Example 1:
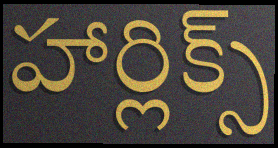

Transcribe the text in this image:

హార్లిక్స్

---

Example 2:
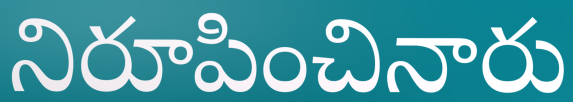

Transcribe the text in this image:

నిరూపించినారు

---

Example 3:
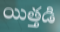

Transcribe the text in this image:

యిత్తడి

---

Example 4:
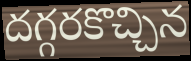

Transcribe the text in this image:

దగ్గరకొచ్చిన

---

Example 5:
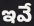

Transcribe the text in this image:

ఇవే